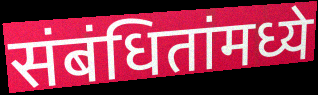
संबंधितांमध्ये